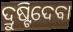
ଦ୍ରୁଷ୍ଟିଦେବା